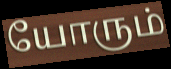
யோரும்